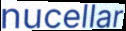
nucellar